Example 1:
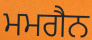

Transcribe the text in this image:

ਮਮਗੈਨ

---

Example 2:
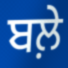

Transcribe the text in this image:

ਬਲ਼ੇ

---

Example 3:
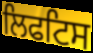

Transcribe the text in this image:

ਲਿਫਟਿਸ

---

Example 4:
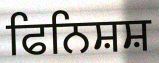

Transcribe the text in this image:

ਫਿਨਿਸ਼ਸ਼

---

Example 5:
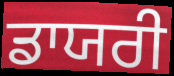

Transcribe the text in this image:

ਡਾਯਰੀ